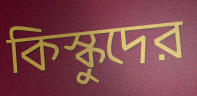
কিস্কুদের